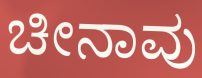
ಚೀನಾವು